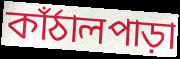
কাঁঠালপাড়া